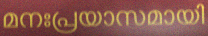
മനഃപ്രയാസമായി